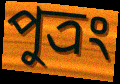
পুত্রং